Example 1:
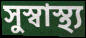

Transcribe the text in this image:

সুস্বাস্থ্য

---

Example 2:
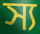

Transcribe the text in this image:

স্য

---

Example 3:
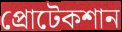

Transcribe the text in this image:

প্রোটেকশান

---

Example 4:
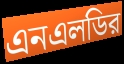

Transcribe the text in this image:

এনএলডির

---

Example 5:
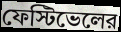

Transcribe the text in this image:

ফেস্টিভেলের